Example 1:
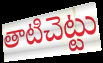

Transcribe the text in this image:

తాటిచెట్టు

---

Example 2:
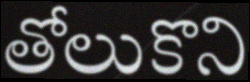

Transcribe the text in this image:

తోలుకొని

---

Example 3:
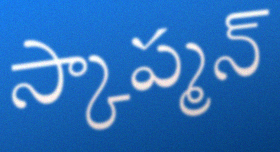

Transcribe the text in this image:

స్కాప్మన్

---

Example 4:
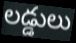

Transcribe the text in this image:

లడ్డులు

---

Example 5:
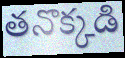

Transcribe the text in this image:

తనొక్కడి